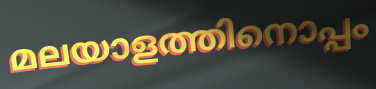
മലയാളത്തിനൊപ്പം